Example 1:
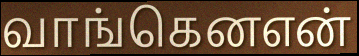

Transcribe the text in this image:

வாங்கெனஎன்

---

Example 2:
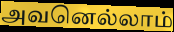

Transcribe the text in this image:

அவனெல்லாம்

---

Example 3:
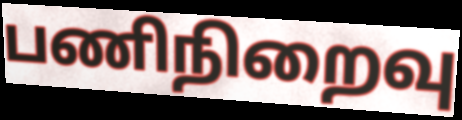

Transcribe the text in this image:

பணிநிறைவு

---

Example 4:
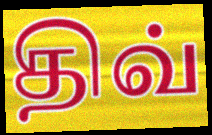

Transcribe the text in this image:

திவ்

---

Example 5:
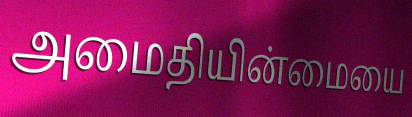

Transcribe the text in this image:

அமைதியின்மையை